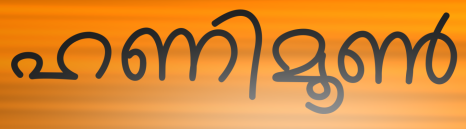
ഹണിമൂൺ